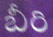
బీరి